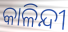
କାଳିନ୍ଦୀ